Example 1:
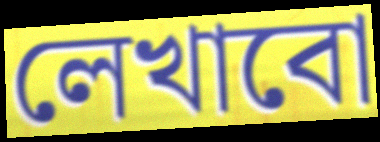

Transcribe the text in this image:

লেখাবো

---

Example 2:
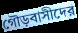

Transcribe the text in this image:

গৌড়বাসীদের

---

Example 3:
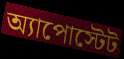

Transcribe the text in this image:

অ্যাপোস্টেট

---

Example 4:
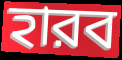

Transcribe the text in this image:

হারব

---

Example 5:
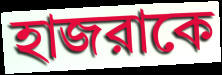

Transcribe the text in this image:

হাজরাকে